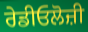
ਰੇਡੀਓਲੋਜ਼ੀ